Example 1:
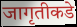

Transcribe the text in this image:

जागृतीकडे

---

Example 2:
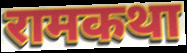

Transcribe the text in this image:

रामकथा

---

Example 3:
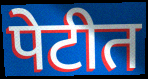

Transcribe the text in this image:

पेटीत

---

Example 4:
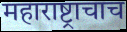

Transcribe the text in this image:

महाराष्ट्राचाच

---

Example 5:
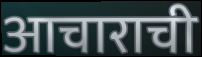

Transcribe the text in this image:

आचाराची